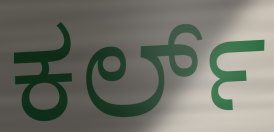
ಕರ್ಲ್